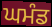
ਘਮੰਡ